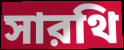
সারথি